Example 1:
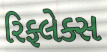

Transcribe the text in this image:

રિફ્લેક્સ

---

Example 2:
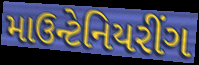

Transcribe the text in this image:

માઉન્ટેનિયરીંગ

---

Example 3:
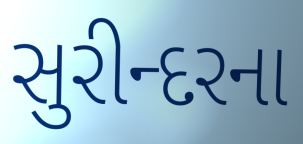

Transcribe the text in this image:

સુરીન્દરના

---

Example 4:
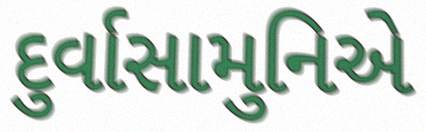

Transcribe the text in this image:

દુર્વાસામુનિએ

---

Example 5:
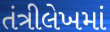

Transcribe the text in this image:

તંત્રીલેખમાં